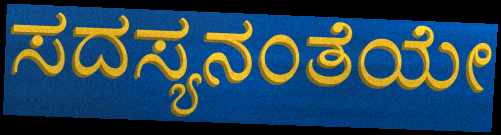
ಸದಸ್ಯನಂತೆಯೇ